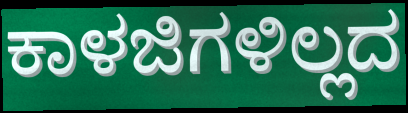
ಕಾಳಜಿಗಳಿಲ್ಲದ